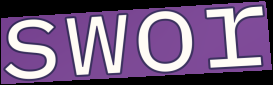
swor